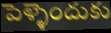
పెళ్ళెందుకు